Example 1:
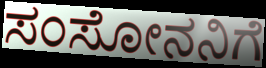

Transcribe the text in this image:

ಸಂಸೋನನಿಗೆ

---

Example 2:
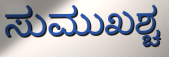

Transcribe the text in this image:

ಸುಮುಖಶ್ಚ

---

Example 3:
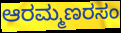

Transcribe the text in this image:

ಆರಮ್ಮಣರಸಂ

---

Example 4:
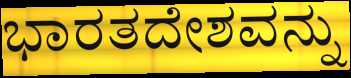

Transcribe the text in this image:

ಭಾರತದೇಶವನ್ನು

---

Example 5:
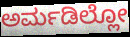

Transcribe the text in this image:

ಅರ್ಮಡಿಲ್ಲೋ